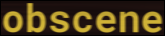
obscene